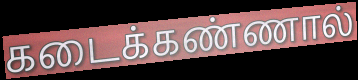
கடைக்கண்ணால்